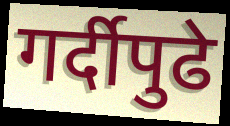
गर्दीपुढे